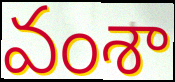
వంశా